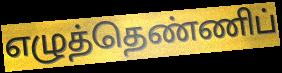
எழுத்தெண்ணிப்